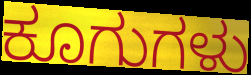
ಕೂಗುಗಳು